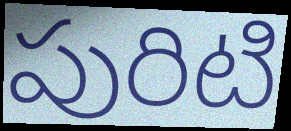
పురిటి